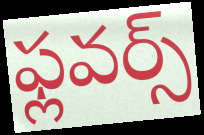
ఫ్లవర్స్